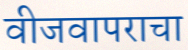
वीजवापराचा